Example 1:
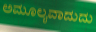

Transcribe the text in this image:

ಅಮೂಲ್ಯವಾದುದು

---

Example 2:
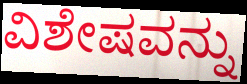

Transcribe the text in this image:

ವಿಶೇಷವನ್ನು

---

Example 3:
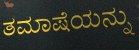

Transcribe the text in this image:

ತಮಾಷೆಯನ್ನು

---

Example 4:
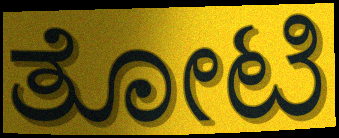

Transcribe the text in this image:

ತೋಟಿ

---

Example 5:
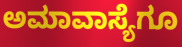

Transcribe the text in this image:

ಅಮಾವಾಸ್ಯೆಗೂ